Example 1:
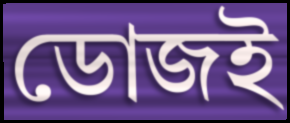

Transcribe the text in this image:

ডোজই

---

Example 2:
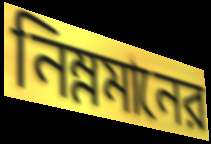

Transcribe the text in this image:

নিম্নমানের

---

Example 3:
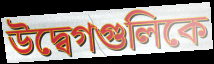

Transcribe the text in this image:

উদ্বেগগুলিকে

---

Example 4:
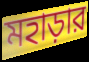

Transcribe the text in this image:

মহাড়ার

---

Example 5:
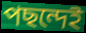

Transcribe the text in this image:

পছন্দেই